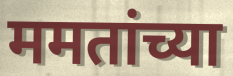
ममतांच्या